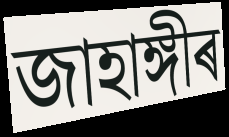
জাহাঙ্গীৰ